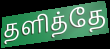
தளித்தே